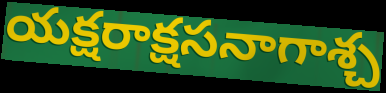
యక్షరాక్షసనాగాశ్చ